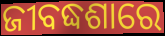
ଜୀବଦ୍ଧଶାରେ